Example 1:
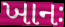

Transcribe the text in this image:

ખાનઃ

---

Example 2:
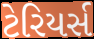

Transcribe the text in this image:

ટેરિયર્સ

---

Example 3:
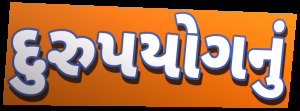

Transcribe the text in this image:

દુરુપયોગનું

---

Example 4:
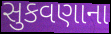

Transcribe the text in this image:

સુકવણાના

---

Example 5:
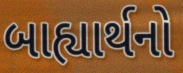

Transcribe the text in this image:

બાહ્યાર્થનો